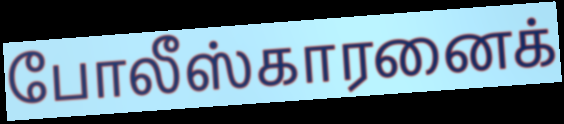
போலீஸ்காரனைக்